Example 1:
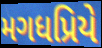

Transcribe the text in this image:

મગધપ્રિયે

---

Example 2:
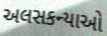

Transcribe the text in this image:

અલસકન્યાઓ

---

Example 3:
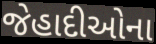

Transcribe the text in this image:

જેહાદીઓના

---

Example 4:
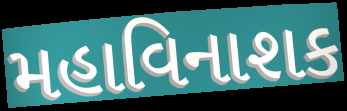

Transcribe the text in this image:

મહાવિનાશક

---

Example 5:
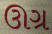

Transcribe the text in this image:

ઊગ્ર